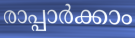
രാപ്പാർക്കാം